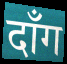
दाँग